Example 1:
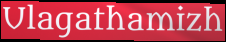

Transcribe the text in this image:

Ulagathamizh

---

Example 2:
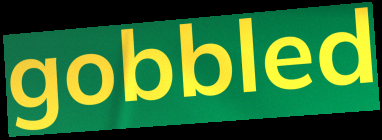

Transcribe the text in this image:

gobbled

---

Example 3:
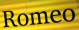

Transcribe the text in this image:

Romeo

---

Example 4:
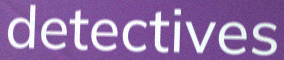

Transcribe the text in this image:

detectives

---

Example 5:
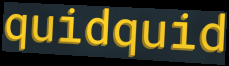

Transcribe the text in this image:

quidquid